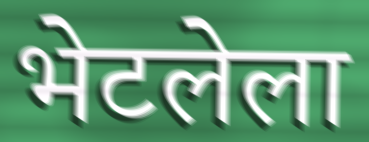
भेटलेला